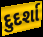
દુદર્શા